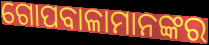
ଗୋପବାଳାମାନଙ୍କର